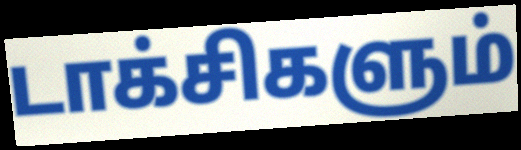
டாக்சிகளும்